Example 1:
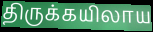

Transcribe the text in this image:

திருக்கயிலாய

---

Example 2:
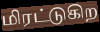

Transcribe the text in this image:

மிரட்டுகிற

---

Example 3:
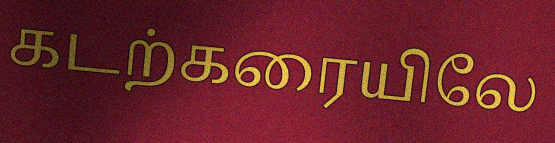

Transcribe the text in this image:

கடற்கரையிலே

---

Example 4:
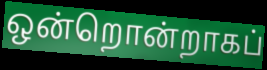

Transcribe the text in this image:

ஒன்றொன்றாகப்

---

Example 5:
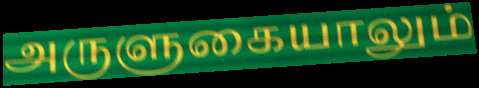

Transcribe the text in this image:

அருளுகையாலும்